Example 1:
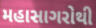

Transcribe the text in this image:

મહાસાગરોથી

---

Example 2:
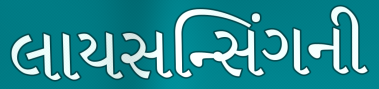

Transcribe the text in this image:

લાયસન્સિંગની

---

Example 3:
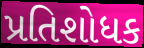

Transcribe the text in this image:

પ્રતિશોધક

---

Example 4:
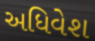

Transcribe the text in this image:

અધિવેશ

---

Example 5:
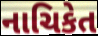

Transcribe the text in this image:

નાચિકેત